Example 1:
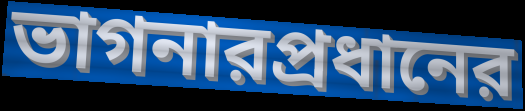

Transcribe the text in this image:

ভাগনারপ্রধানের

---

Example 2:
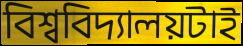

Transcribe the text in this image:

বিশ্ববিদ্যালয়টাই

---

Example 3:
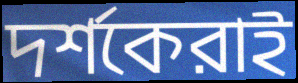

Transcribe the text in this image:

দর্শকেরাই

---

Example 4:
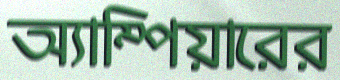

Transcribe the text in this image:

অ্যাম্পিয়ারের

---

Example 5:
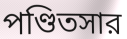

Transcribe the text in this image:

পণ্ডিতসার